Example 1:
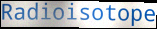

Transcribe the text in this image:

Radioisotope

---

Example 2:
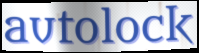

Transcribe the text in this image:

autolock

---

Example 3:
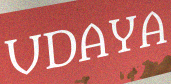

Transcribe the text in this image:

UDAYA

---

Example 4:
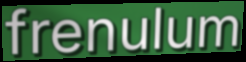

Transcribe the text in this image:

frenulum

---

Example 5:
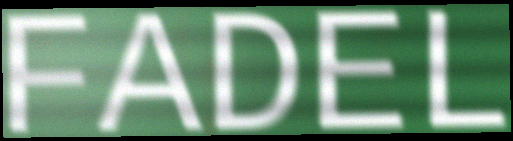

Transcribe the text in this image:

FADEL